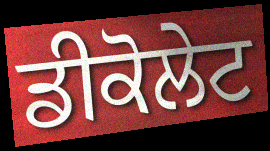
ਡੀਕੋਲੇਟ